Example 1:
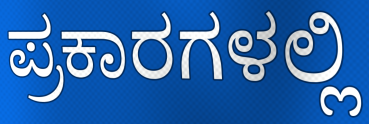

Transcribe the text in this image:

ಪ್ರಕಾರಗಳಲ್ಲಿ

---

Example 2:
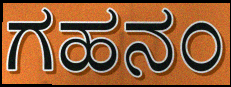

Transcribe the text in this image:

ಗಹನಂ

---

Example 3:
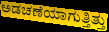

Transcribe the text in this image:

ಅಡಚಣೆಯಾಗುತ್ತಿತ್ತು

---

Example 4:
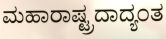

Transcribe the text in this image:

ಮಹಾರಾಷ್ಟ್ರದಾದ್ಯಂತ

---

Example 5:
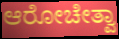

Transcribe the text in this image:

ಆರೋಚೇತ್ವಾ